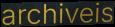
archiveis